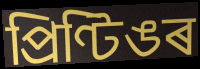
প্ৰিণ্টিঙৰ